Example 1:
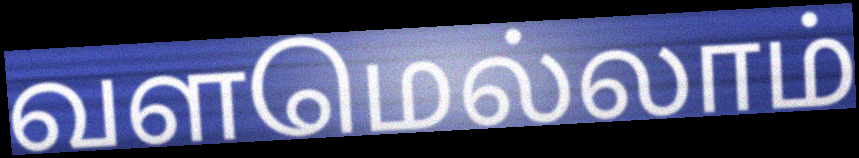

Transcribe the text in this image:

வளமெல்லாம்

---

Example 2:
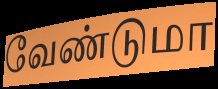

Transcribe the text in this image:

வேண்டுமா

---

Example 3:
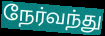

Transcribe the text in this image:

நேர்வந்து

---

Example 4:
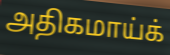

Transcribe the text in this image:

அதிகமாய்க்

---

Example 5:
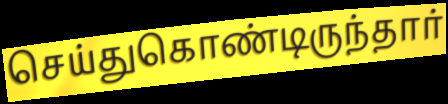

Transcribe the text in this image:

செய்துகொண்டிருந்தார்